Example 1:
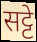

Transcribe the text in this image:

सट्टे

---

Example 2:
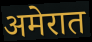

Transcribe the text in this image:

अमेरात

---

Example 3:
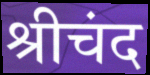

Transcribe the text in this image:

श्रीचंद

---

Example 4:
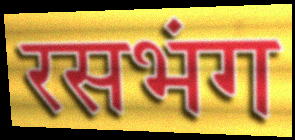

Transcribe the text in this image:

रसभंग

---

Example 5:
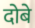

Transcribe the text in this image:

दोबे